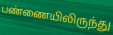
பண்ணையிலிருந்து